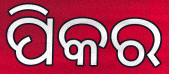
ପିକର